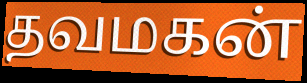
தவமகன்